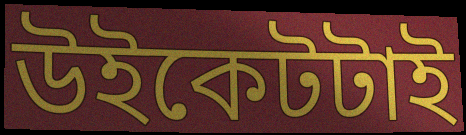
উইকেটটাই